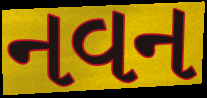
નવન